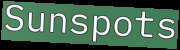
Sunspots